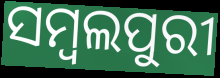
ସମ୍ବଲପୁରୀ